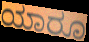
ಯಾರೂ